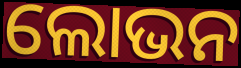
ଲୋଭନ